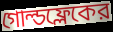
গোল্ডফ্লেকের